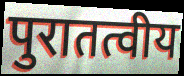
पुरातत्वीय